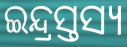
ଇନ୍ଦ୍ରସ୍ତସ୍ୟ